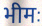
भीमः